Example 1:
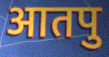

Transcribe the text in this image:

आतपु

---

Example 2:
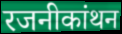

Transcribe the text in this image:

रजनीकांथन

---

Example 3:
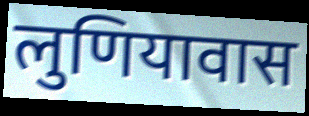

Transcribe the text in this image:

लुणियावास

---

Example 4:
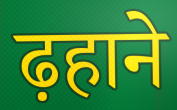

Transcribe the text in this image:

ढ़हाने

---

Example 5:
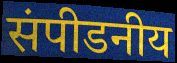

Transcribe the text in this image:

संपीडनीय